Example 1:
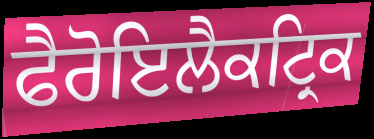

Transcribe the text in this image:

ਫੈਰੋਇਲੈਕਟ੍ਰਿਕ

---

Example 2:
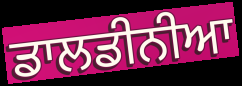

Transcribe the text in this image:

ਡਾਲਡੀਨੀਆ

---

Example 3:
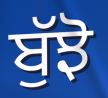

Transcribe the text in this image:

ਬੁੱਝੋ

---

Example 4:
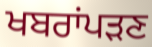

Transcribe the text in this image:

ਖਬਰਾਂਪੜਣ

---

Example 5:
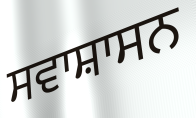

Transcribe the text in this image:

ਸਵਾਸ਼ਾਸਨ